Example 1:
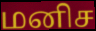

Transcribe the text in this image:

மனிச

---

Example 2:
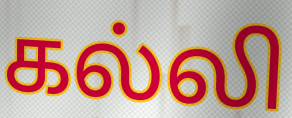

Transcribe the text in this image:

கல்லி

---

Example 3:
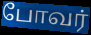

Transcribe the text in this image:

போவர்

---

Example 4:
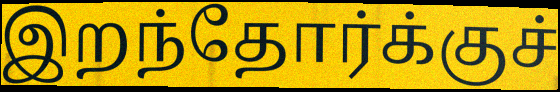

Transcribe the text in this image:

இறந்தோர்க்குச்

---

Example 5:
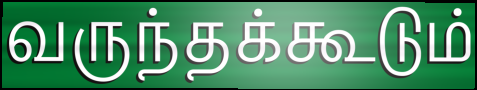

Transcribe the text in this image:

வருந்தக்கூடும்